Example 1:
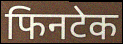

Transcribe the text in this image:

फिनटेक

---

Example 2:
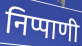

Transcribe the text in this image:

निप्पाणी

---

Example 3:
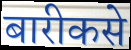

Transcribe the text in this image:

बारीकसे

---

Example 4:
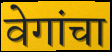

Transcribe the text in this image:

वेगांचा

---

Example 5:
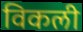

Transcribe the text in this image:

विकली